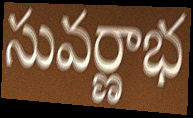
సువర్ణాభ